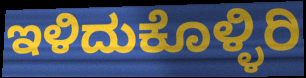
ಇಳಿದುಕೊಳ್ಳಿರಿ